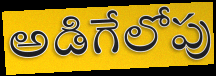
అడిగేలోపు